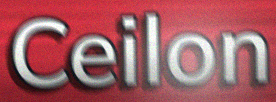
Ceilon